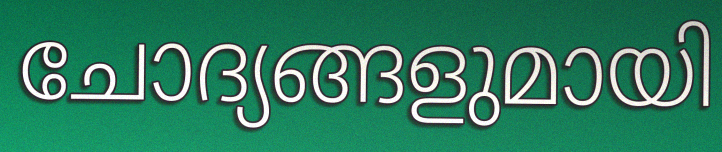
ചോദ്യങ്ങളുമായി